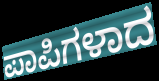
ಪಾಪಿಗಳಾದ